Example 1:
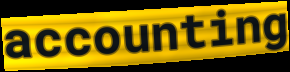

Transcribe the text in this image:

accounting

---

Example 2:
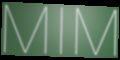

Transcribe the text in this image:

MIM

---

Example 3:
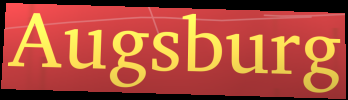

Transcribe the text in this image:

Augsburg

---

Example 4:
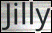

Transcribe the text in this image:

Jilly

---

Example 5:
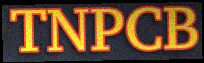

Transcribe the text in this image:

TNPCB